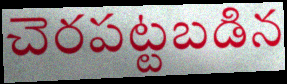
చెరపట్టబడిన